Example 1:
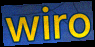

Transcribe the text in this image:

wiro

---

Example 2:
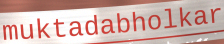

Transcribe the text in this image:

muktadabholkar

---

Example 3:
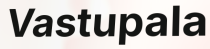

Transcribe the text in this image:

Vastupala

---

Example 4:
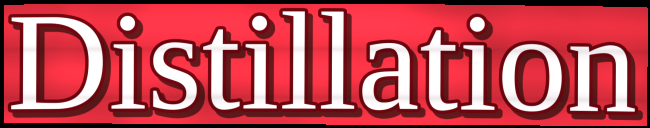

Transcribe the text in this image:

Distillation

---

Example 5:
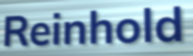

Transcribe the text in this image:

Reinhold